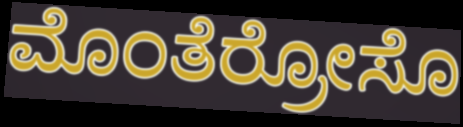
ಮೊಂತೆರ್ರೋಸೊ